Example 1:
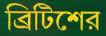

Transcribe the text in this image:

ব্রিটিশের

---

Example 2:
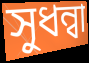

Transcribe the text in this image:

সুধন্বা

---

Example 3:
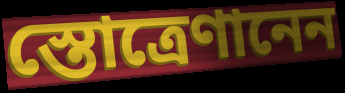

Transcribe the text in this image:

স্তোত্রেণানেন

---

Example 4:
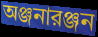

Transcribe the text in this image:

অঞ্জনারঞ্জন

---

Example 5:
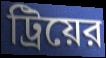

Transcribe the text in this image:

ট্রিয়ের